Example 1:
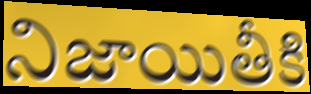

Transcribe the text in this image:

నిజాయితీకి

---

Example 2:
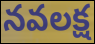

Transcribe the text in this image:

నవలక్ష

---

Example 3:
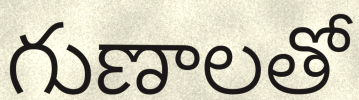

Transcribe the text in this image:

గుణాలతో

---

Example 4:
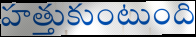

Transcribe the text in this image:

హత్తుకుంటుంది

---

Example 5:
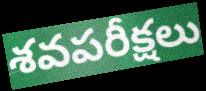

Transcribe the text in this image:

శవపరీక్షలు